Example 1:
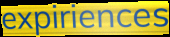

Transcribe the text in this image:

expiriences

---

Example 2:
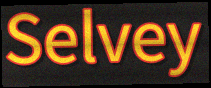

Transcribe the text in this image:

Selvey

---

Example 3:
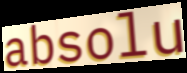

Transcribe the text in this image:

absolu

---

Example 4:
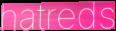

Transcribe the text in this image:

hatreds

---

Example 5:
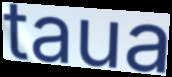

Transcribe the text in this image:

taua